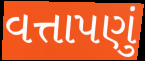
વત્તાપણું